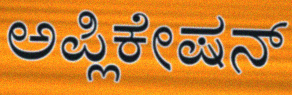
ಅಪ್ಲಿಕೇಷನ್